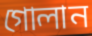
গোলান